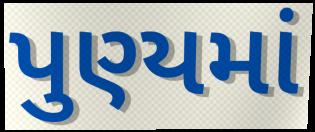
પુણ્યમાં